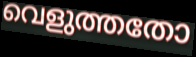
വെളുത്തതോ